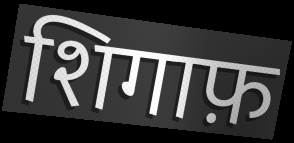
शिगाफ़